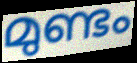
മുണ്ടം